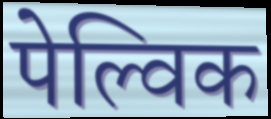
पेल्विक